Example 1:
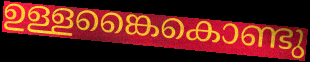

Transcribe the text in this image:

ഉള്ളങ്കൈകൊണ്ടു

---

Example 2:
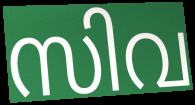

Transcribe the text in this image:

സിവ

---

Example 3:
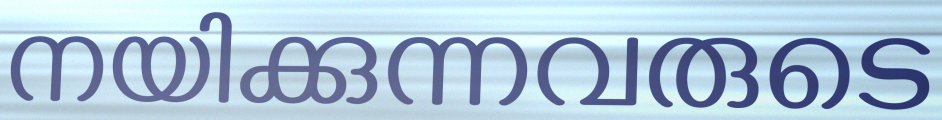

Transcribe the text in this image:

നയിക്കുന്നവരുടെ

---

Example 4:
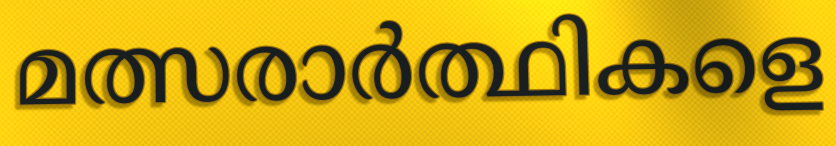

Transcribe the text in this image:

മത്സരാർത്ഥികളെ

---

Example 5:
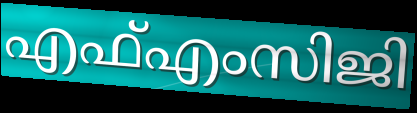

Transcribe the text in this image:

എഫ്എംസിജി